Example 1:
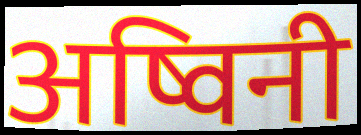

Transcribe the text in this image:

अष्विनी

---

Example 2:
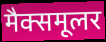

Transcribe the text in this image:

मैक्समूलर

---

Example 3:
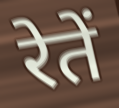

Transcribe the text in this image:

रेतें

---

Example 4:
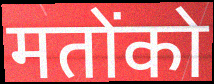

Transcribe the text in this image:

मतोंको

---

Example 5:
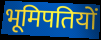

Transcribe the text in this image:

भूमिपतियों